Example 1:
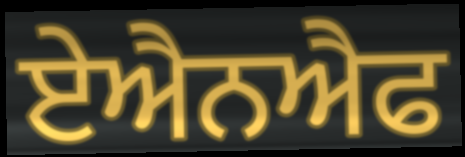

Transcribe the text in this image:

ਏਐਨਐਫ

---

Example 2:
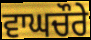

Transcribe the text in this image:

ਵਾਘਚੌਰੇ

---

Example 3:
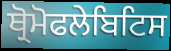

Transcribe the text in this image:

ਥ੍ਰੋਮੋਫਲੇਬਿਟਿਸ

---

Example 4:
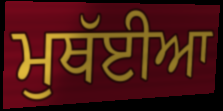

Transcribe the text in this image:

ਮੁਥੱਈਆ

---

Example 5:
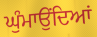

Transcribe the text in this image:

ਘੁੰਮਾਉਂਦਿਆਂ